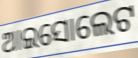
ଆଇସୋଲେଟ